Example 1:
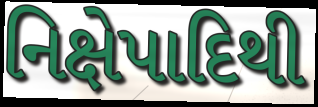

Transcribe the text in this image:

નિક્ષેપાદિથી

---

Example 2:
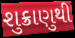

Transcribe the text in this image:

શુક્રાણુથી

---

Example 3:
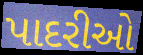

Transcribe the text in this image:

પાદરીઓ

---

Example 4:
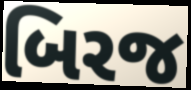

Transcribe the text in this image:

બિરજ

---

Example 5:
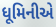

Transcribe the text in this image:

ધૂમિનીએ